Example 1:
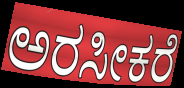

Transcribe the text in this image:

ಅರಸೀಕರೆ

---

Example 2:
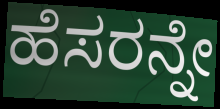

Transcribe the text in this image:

ಹೆಸರನ್ನೇ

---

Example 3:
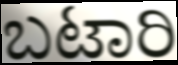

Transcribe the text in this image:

ಬಟಾರಿ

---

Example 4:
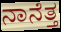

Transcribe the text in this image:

ನಾನೆತ್ತ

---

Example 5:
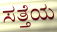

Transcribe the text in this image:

ಸತ್ತೆಯ